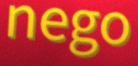
nego